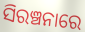
ସିରଞ୍ଚନାରେ